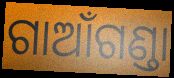
ଗାଆଁଗଣ୍ଡା